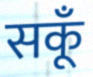
सकूँ